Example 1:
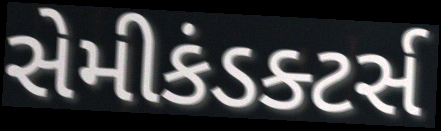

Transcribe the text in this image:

સેમીકંડક્ટર્સ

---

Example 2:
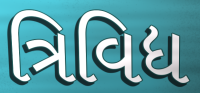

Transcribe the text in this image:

ત્રિવિદ્ય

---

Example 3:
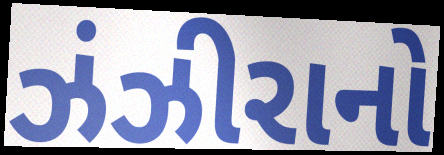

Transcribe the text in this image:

ઝંઝીરાનો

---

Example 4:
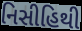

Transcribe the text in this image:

નિસીહિથી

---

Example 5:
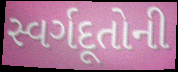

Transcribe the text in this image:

સ્વર્ગદૂતોની